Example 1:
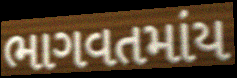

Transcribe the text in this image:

ભાગવતમાંય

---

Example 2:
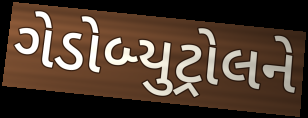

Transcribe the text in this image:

ગેડોબ્યુટ્રોલને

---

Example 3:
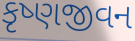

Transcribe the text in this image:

કૃષ્ણજીવન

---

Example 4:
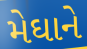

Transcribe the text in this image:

મેઘાને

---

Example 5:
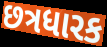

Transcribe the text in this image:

છત્રધારક